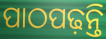
ପାଠପଢ଼ନ୍ତି